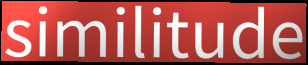
similitude